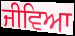
ਜੀਵਿਆ